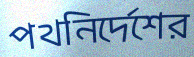
পথনির্দেশের